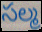
సల్మ